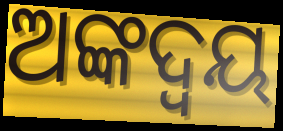
ଅଙ୍କଦ୍ବୟ